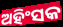
ଅହିଂସକ